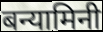
बन्यामिनी